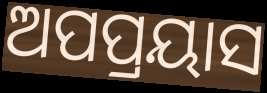
ଅପପ୍ରୟାସ